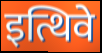
इत्थिवे